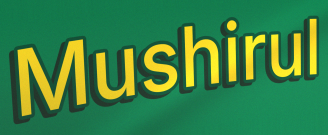
Mushirul